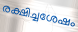
രക്ഷിച്ചശേഷം